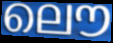
ലൌ